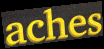
aches